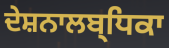
ਦੇਸ਼ਨਾਲਬ੍ਧਿਕਾ